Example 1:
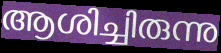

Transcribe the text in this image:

ആശിച്ചിരുന്നു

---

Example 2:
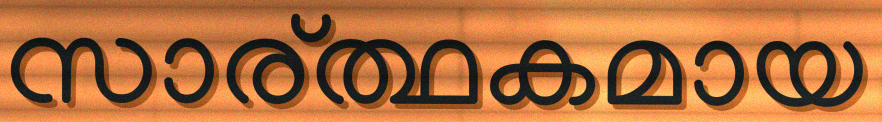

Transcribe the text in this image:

സാര്ത്ഥകമായ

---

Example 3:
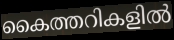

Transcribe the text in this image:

കൈത്തറികളിൽ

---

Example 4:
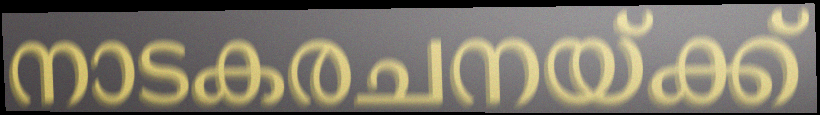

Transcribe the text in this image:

നാടകരചനയ്ക്ക്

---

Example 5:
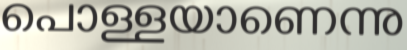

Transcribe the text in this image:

പൊള്ളയാണെന്നു